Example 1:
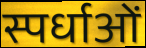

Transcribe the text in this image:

स्‍पर्धाओं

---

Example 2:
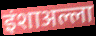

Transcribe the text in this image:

इंशाअल्ला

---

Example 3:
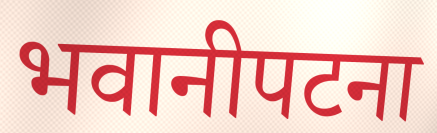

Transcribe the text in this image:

भवानीपटना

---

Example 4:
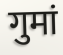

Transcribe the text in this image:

गुमां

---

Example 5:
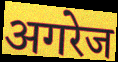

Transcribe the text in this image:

अगरेज